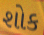
શોક